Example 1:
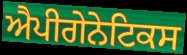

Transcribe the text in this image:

ਐਪੀਗੇਨੇਟਿਕਸ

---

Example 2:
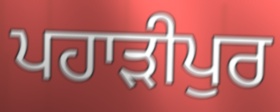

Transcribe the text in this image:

ਪਹਾੜੀਪੁਰ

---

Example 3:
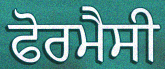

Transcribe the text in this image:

ਫੋਰਮੈਸੀ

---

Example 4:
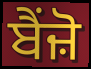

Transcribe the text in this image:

ਬੈਂਜ਼ੋ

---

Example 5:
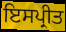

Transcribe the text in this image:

ਇਸਪ੍ਰੀਤ